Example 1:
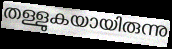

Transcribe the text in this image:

തള്ളുകയായിരുന്നു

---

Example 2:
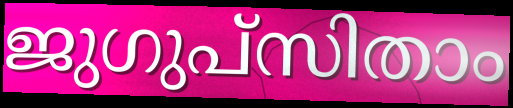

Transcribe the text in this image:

ജുഗുപ്സിതാം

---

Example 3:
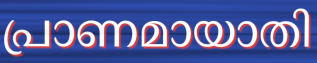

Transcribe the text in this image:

പ്രാണമായാതി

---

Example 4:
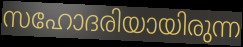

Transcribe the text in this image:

സഹോദരിയായിരുന്ന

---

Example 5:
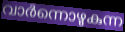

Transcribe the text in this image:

വാർന്നൊഴുകുന്ന